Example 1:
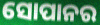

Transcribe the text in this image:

ସୋପାନର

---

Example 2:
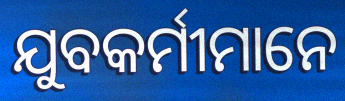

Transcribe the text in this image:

ଯୁବକର୍ମୀମାନେ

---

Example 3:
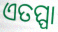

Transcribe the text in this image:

ଏତପ୍ପା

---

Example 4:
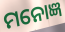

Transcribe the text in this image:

ମନୋଜ୍ଞ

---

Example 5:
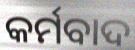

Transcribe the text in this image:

କର୍ମବାଦ